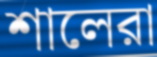
শালেরা